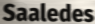
Saaledes